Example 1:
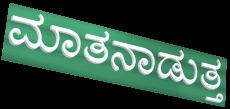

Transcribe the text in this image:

ಮಾತನಾಡುತ್ತ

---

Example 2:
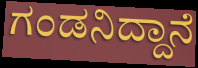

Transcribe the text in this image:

ಗಂಡನಿದ್ದಾನೆ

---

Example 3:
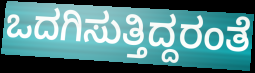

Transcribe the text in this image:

ಒದಗಿಸುತ್ತಿದ್ದರಂತೆ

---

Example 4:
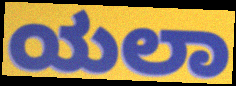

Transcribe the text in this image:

ಯಲಾ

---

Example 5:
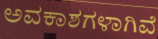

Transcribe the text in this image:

ಅವಕಾಶಗಳಾಗಿವೆ